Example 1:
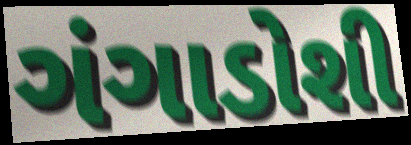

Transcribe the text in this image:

ગંગાડોશી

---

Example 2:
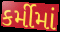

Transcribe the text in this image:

કર્મીમાં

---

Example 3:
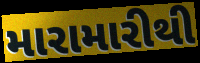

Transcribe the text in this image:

મારામારીથી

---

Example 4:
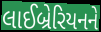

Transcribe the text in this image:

લાઈબ્રેરિયનને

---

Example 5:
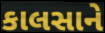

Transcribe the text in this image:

કાલસાને